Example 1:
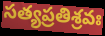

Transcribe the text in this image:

సత్యప్రతిశ్రవః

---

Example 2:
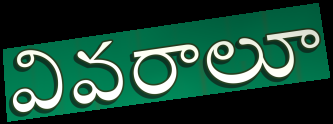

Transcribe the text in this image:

వివరాలూ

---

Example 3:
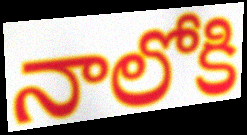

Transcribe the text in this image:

నాలోకి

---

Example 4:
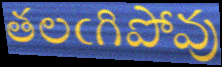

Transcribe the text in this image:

తలఁగిపోవు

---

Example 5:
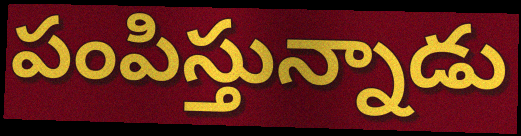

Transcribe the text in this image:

పంపిస్తున్నాడు